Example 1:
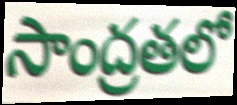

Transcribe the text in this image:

సాంద్రతలో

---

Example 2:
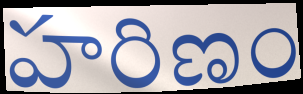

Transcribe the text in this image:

హరిణం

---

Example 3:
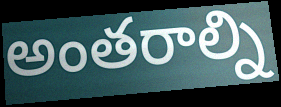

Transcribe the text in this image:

అంతరాల్ని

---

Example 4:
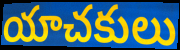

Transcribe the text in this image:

యాచకులు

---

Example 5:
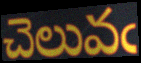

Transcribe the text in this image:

చెలువఁ